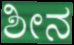
ಶೀನ